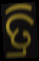
ତ୍ରି